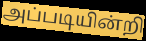
அப்படியின்றி